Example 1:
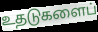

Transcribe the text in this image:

உதடுகளைப்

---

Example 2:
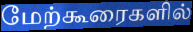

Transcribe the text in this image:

மேற்கூரைகளில்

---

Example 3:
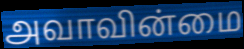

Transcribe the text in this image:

அவாவின்மை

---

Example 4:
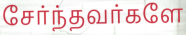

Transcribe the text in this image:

சேர்ந்தவர்களே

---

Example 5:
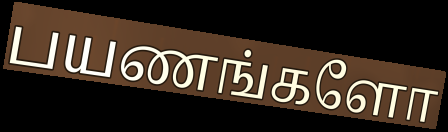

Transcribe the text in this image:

பயணங்களோ